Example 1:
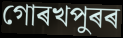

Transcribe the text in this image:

গোৰখপুৰৰ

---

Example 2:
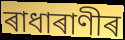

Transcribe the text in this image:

ৰাধাৰাণীৰ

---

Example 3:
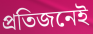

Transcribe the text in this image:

প্ৰতিজনেই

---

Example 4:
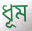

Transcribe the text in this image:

ধূম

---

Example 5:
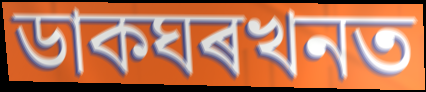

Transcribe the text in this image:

ডাকঘৰখনত